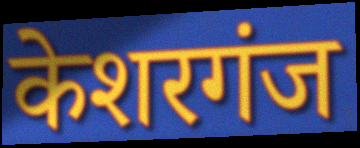
केशरगंज